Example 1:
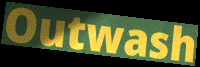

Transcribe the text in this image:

Outwash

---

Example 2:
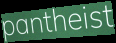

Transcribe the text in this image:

pantheist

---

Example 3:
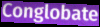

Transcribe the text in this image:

Conglobate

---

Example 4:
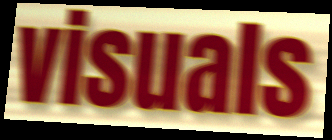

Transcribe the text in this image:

visuals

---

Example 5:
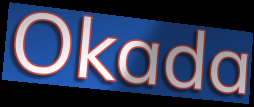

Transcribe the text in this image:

Okada